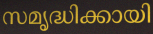
സമൃദ്ധിക്കായി